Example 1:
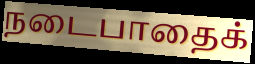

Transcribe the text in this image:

நடைபாதைக்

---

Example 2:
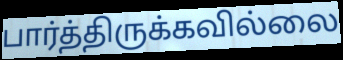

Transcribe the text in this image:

பார்த்திருக்கவில்லை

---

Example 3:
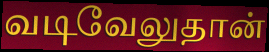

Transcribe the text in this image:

வடிவேலுதான்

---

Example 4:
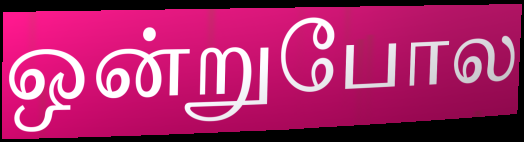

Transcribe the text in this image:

ஒன்றுபோல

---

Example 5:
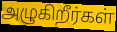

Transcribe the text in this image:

அழுகிறீர்கள்